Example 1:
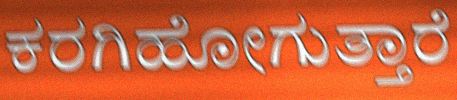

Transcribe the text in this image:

ಕರಗಿಹೋಗುತ್ತಾರೆ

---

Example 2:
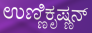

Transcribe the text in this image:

ಉಣ್ಣಿಕೃಷ್ಣನ್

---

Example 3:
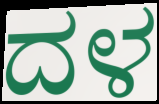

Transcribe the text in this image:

ದಳ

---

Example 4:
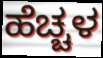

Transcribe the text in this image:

ಹೆಚ್ಚಳ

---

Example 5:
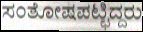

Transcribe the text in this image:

ಸಂತೋಷಪಟ್ಟಿದ್ದರು